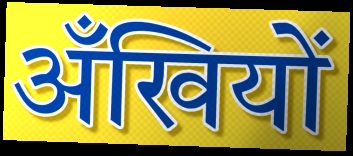
अँखियों